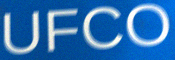
UFCO